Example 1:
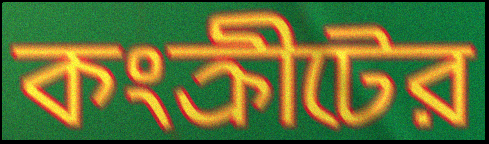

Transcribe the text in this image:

কংক্রীটের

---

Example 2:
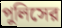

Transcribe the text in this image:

পুলিসের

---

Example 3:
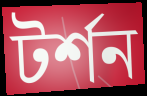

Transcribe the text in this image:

টর্শন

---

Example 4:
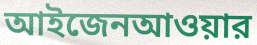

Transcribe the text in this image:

আইজেনআওয়ার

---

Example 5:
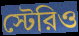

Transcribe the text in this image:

স্টেরিও